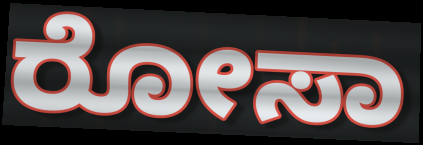
ರೋಸಾ